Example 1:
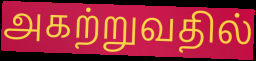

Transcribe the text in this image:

அகற்றுவதில்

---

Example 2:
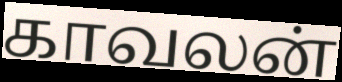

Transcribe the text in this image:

காவலன்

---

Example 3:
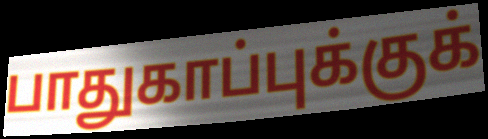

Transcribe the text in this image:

பாதுகாப்புக்குக்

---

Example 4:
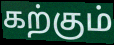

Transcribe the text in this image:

கற்கும்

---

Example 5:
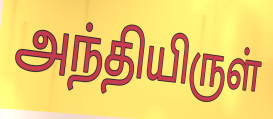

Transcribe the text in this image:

அந்தியிருள்